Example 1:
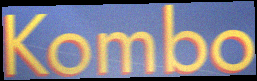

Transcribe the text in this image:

Kombo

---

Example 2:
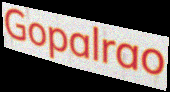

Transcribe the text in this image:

Gopalrao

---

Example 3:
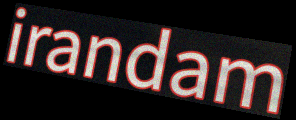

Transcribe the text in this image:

irandam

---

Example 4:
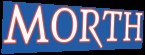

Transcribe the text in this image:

MORTH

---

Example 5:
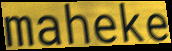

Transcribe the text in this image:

maheke